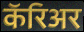
कॅरिअर